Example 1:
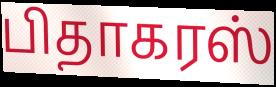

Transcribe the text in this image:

பிதாகரஸ்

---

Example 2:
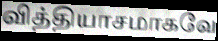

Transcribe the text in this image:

வித்தியாசமாகவே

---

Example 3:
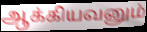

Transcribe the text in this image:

ஆக்கியவனும்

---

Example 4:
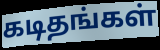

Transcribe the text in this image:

கடிதங்கள்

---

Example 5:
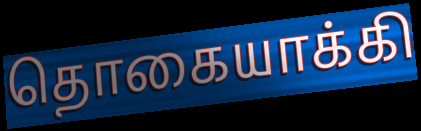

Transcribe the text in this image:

தொகையாக்கி